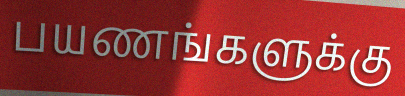
பயணங்களுக்கு